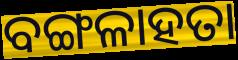
ବଙ୍ଗଳାହତା